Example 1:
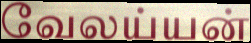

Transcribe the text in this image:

வேலய்யன்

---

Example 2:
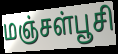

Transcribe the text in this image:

மஞ்சள்பூசி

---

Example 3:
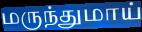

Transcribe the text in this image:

மருந்துமாய்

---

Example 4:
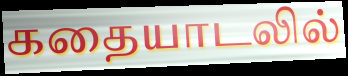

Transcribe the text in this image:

கதையாடலில்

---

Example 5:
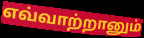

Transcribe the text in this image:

எவ்வாற்றானும்